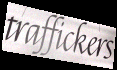
traffickers